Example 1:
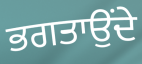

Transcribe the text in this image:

ਭਗਤਾਉਂਦੇ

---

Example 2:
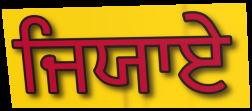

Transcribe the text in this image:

ਜਿਯਾਏ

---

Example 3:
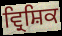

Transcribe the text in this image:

ਵ੍ਰਿਸ਼ਿਕ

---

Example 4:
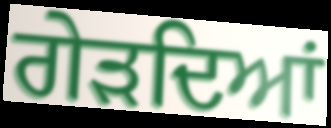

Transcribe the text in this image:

ਗੇੜਦਿਆਂ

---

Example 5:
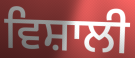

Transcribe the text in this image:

ਵਿਸ਼ਾਲੀ